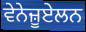
ਵੇਨੇਜ਼ੂਏਲਨ